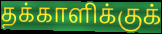
தக்காளிக்குக்